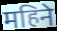
महिने